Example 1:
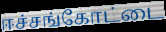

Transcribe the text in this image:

ஈச்சங்கோட்டை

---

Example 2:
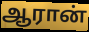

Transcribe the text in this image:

ஆரான்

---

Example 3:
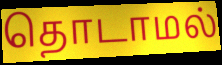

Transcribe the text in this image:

தொடாமல்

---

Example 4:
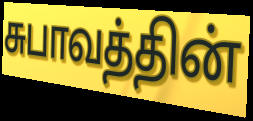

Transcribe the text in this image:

சுபாவத்தின்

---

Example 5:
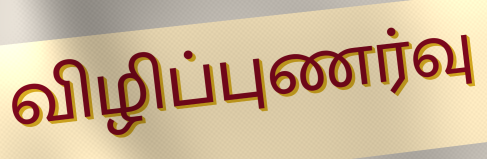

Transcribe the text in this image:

விழிப்புணர்வு